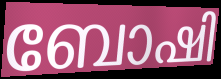
ബോഷി